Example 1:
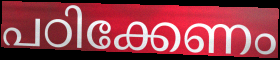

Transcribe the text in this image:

പഠിക്കേണം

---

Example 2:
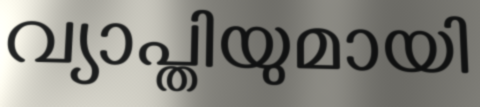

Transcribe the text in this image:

വ്യാപ്തിയുമായി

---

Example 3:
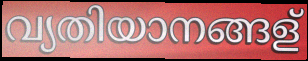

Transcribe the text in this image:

വ്യതിയാനങ്ങള്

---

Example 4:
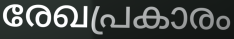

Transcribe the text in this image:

രേഖപ്രകാരം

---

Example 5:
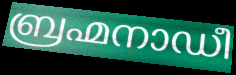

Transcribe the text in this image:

ബ്രഹ്മനാഡീ